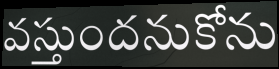
వస్తుందనుకోను